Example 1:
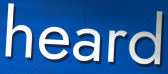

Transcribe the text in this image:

heard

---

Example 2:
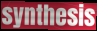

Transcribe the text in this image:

synthesis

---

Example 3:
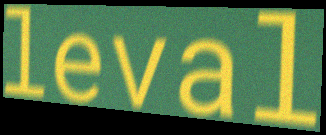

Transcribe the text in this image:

leval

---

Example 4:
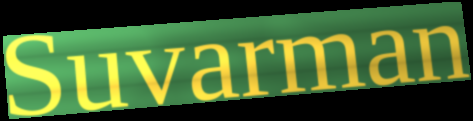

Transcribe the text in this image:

Suvarman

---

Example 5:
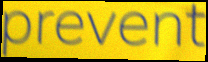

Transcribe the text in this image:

prevent